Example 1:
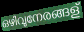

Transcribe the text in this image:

ഒഴിവുനേരങ്ങള്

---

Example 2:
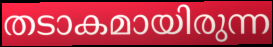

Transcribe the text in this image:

തടാകമായിരുന്ന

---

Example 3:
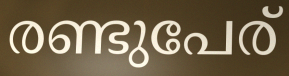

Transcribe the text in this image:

രണ്ടുപേര്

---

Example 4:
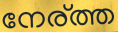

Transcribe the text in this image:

നേര്ത്ത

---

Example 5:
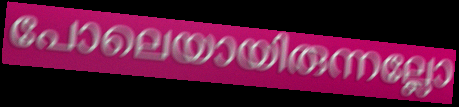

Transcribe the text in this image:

പോലെയായിരുന്നല്ലോ